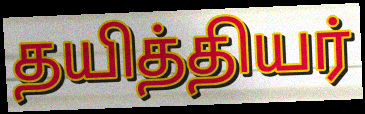
தயித்தியர்